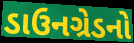
ડાઉનગ્રેડનો